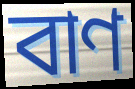
বাণ